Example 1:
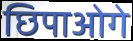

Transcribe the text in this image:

छिपाओगे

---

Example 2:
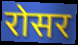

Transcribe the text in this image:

रोसर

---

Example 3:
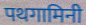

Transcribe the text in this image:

पथगामिनी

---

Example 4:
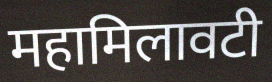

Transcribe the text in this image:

महामिलावटी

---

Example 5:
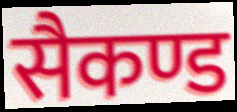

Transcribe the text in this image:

सैकण्ड